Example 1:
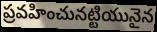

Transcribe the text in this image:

ప్రవహించునట్టియునైన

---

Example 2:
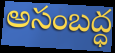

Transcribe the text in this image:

అసంబద్ధ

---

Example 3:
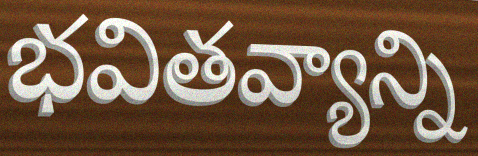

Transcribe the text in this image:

భవితవ్యాన్ని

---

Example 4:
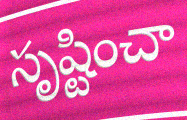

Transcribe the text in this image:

సృష్టించా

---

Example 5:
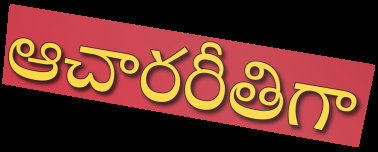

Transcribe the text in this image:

ఆచారరీతిగా